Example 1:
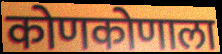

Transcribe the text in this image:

कोणकोणाला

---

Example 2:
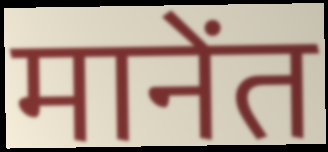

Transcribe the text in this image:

मानेंत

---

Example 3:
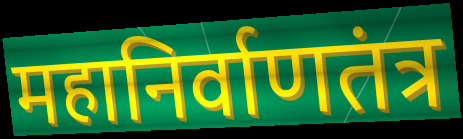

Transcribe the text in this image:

महानिर्वाणतंत्र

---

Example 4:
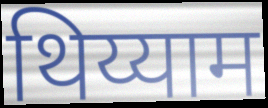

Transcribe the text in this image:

थिय्याम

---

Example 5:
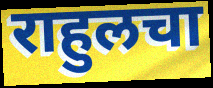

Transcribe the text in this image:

राहुलचा